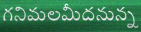
గనిమలమీదనున్న